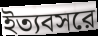
ইত্যবসরে